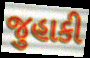
જુહાકી